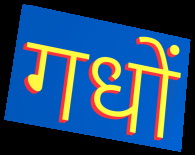
गधों